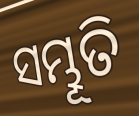
ସମ୍ଭୂତି